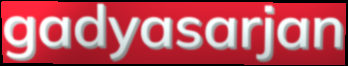
gadyasarjan